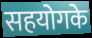
सहयोगके